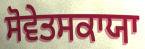
ਸੋਵੇਤਸਕਾਯਾ